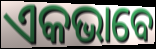
ଏକଭାବେ